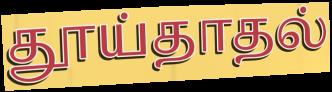
தூய்தாதல்